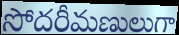
సోదరీమణులుగా